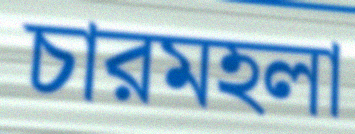
চারমহলা